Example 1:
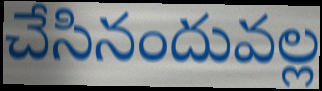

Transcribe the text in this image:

చేసినందువల్ల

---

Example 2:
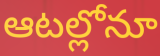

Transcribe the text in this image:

ఆటల్లోనూ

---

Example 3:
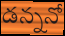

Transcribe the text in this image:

డన్ననో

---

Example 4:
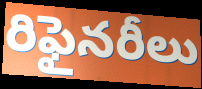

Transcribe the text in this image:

రిఫైనరీలు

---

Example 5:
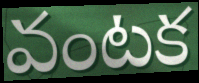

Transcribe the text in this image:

వంటక